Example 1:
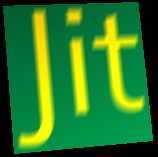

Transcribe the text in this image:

Jit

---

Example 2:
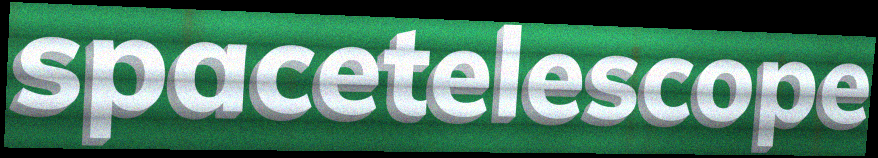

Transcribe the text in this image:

spacetelescope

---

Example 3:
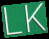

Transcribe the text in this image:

LK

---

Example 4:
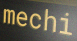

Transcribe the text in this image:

mechi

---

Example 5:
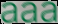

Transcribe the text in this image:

aaa